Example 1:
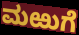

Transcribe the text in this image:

ಮಱುಗೆ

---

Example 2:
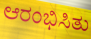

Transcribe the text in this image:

ಆರಂಭಿಸಿತು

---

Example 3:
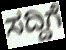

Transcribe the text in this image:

ಸದ್ದಿಗೆ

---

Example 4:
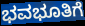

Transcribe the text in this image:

ಭವಭೂತಿಗೆ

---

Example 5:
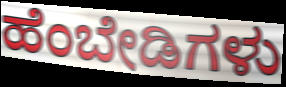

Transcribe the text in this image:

ಹೆಂಬೇಡಿಗಳು